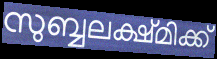
സുബ്ബലക്ഷ്മിക്ക്